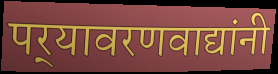
पर्यावरणवाद्यांनी